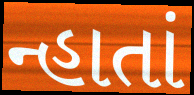
ન્હાતાં